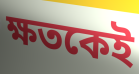
ক্ষতকেই